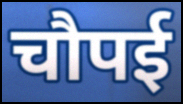
चौपई